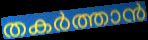
തകർത്താൻ